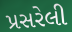
પ્રસરેલી